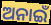
ଅନାଇଁ